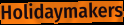
Holidaymakers